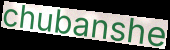
chubanshe